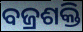
ବଜ୍ରଶକ୍ତି